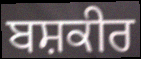
ਬਸ਼ਕੀਰ